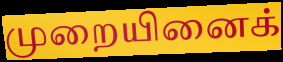
முறையினைக்